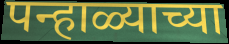
पन्हाळ्याच्या